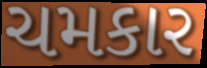
ચમકાર